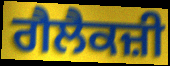
ਗੈਲੈਕਜ਼ੀ